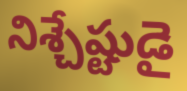
నిశ్చేష్టుడై